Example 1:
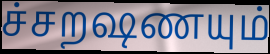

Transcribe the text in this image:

ச்சறஷணயும்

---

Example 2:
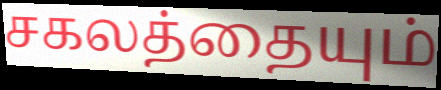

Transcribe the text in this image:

சகலத்தையும்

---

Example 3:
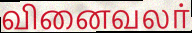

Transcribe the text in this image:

வினைவலர்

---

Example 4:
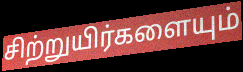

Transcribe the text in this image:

சிற்றுயிர்களையும்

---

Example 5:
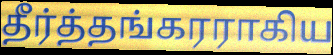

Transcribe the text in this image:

தீர்த்தங்கரராகிய